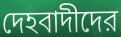
দেহবাদীদের